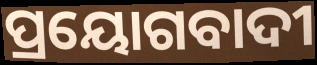
ପ୍ରୟୋଗବାଦୀ